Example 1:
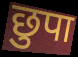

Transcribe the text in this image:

छुपा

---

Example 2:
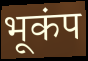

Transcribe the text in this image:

भूकंप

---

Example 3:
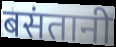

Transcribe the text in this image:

बसंतानी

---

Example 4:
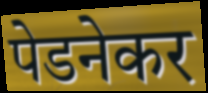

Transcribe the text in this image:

पेडनेकर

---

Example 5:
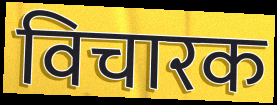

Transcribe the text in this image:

विचारक